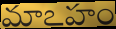
మాఽహం